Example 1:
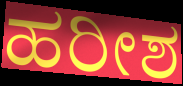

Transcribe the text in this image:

ಹರೀಶ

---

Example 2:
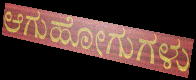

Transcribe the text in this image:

ಆಗುಹೋಗುಗಳು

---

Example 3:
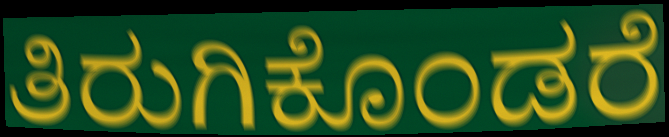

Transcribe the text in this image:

ತಿರುಗಿಕೊಂಡರೆ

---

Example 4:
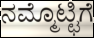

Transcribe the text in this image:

ನಮ್ಮೊಟ್ಟಿಗೆ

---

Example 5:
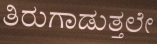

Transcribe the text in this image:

ತಿರುಗಾಡುತ್ತಲೇ